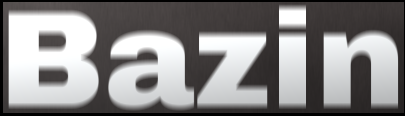
Bazin